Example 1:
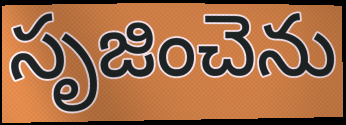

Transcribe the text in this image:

సృజించెను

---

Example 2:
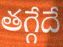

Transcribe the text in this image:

తగ్గేదే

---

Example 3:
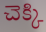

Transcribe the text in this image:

చెక్కి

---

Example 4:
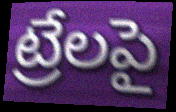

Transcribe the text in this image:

ట్రేలపై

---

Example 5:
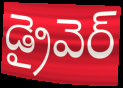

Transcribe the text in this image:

డ్రైవెర్